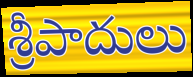
శ్రీపాదులు